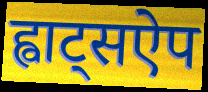
ह्वाट्सऐप